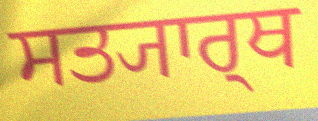
ਸਤ੍ਯਾਰ੍ਥ